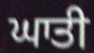
ਘਾਤੀ